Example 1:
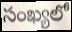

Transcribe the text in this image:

సంఖ్యలో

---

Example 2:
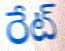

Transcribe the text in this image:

రేట్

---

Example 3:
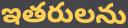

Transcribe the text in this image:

ఇతరులను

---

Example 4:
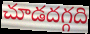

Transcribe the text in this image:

చూడదగ్గది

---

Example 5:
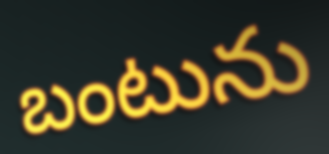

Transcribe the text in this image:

బంటును